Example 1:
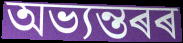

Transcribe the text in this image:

অভ্যন্তৰৰ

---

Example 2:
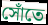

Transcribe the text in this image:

সোঁতে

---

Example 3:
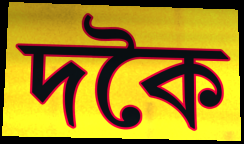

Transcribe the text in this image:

দকৈ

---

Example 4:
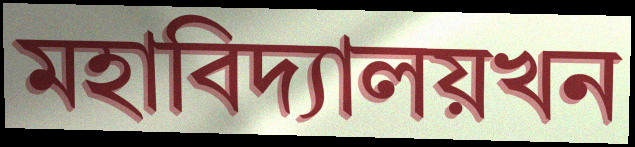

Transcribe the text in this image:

মহাবিদ্যালয়খন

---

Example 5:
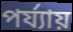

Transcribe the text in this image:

পৰ্য্যায়